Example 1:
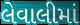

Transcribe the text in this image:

લેવાલીમાં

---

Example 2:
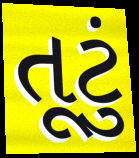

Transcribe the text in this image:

તૂટું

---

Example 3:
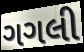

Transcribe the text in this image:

ગગલી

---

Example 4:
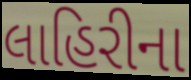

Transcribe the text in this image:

લાહિરીના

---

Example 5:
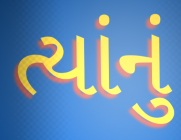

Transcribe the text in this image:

ત્યાંનું